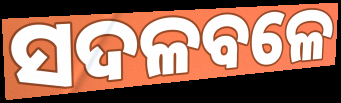
ସଦଳବଳେ